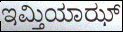
ಇಮ್ತಿಯಾಝ್